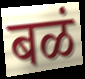
बळं